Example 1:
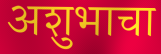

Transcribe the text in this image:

अशुभाचा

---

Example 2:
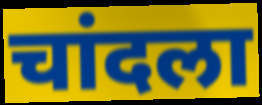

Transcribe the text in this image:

चांदला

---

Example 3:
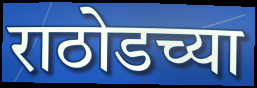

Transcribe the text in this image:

राठोडच्या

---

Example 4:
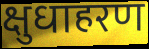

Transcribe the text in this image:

क्षुधाहरण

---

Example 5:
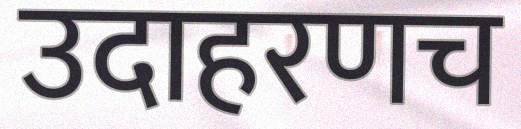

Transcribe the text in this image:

उदाहरणच